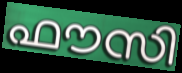
ഫൗസി